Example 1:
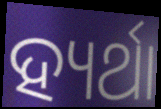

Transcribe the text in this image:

ହ୍ୟର୍ଥା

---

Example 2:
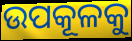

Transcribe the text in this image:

ଉପକୂଳକୁ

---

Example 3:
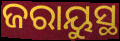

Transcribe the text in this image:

ଜରାୟୁସ୍ଥ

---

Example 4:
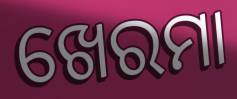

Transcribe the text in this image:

ଖେରମା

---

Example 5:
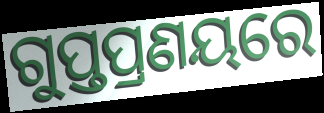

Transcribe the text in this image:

ଗୁପ୍ତପ୍ରଣୟରେ